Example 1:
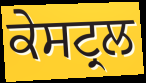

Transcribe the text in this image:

ਕੇਸਟ੍ਰਲ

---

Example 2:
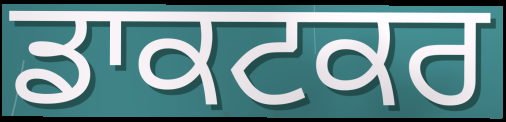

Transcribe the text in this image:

ਡਾਕਟਕਰ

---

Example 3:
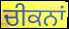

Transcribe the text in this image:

ਚੀਕਨਾਂ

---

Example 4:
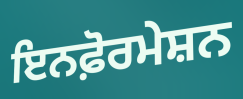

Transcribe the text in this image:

ਇਨਫ਼ੋਰਮੇਸ਼ਨ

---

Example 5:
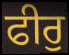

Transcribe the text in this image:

ਫੀਰੁ